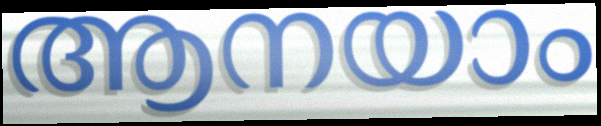
ആനയാം